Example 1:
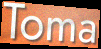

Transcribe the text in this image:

Toma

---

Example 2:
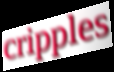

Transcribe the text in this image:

cripples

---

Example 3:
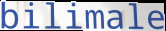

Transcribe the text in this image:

bilimale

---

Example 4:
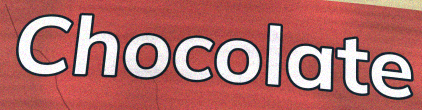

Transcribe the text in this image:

Chocolate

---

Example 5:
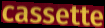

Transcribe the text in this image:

cassette